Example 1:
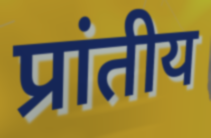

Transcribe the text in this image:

प्रांतीय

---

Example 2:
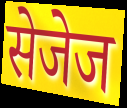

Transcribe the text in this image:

सेजेज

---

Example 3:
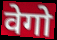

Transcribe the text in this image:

वेगो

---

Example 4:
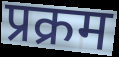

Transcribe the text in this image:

प्रक्रम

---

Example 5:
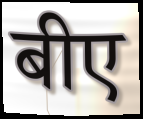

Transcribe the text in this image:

बीए